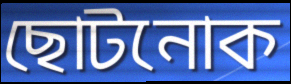
ছোটনোক